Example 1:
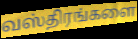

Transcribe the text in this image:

வஸ்திரங்களை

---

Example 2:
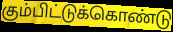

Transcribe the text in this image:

கும்பிட்டுக்கொண்டு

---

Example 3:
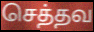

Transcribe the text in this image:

செத்தவ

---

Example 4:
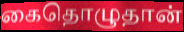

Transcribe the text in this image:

கைதொழுதான்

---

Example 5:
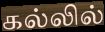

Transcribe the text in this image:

கல்லில்